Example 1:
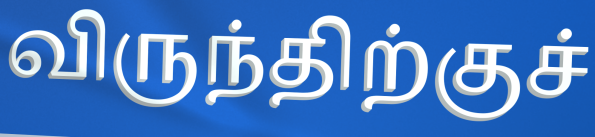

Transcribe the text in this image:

விருந்திற்குச்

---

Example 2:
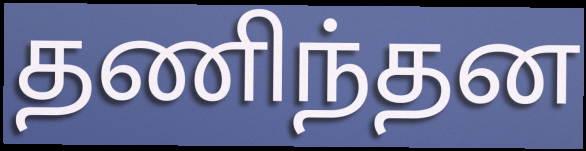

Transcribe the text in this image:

தணிந்தன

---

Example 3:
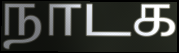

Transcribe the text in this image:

நாடக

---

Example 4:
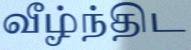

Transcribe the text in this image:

வீழ்ந்திட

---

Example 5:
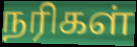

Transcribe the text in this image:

நரிகள்